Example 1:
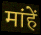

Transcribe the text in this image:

मांहें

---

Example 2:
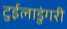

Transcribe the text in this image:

टुईलाडुंगरी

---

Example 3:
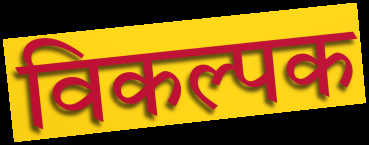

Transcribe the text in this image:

विकल्पक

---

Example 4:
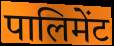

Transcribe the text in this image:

पालिमेंट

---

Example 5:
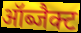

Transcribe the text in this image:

ऑब्जैक्ट